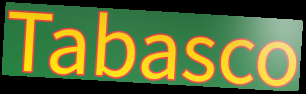
Tabasco